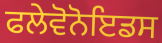
ਫਲੇਵੋਨੋਇਡਸ